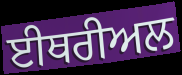
ਈਥਰੀਅਲ